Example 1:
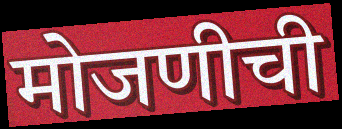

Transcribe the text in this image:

मोजणीची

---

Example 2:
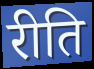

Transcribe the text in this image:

रीति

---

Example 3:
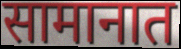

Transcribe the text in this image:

सामानात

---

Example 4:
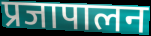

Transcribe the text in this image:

प्रजापालन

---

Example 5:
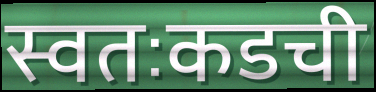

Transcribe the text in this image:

स्वतःकडची